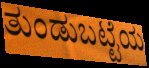
ತುಂಡುಬಟ್ಟೆಯ